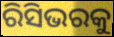
ରିସିଭରକୁ